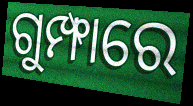
ଗୁମ୍ଫାରେ